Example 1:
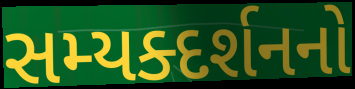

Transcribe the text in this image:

સમ્યક્દર્શનનો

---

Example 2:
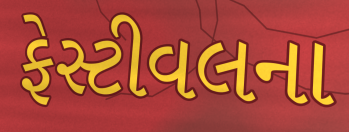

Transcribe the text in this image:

ફેસ્ટીવલના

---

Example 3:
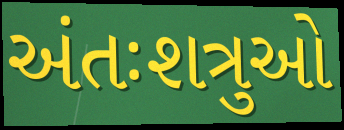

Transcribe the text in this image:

અંતઃશત્રુઓ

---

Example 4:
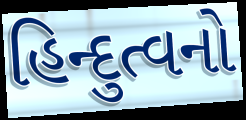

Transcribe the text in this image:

હિન્દુત્વનો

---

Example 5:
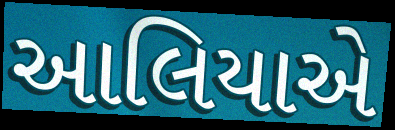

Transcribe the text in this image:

આલિયાએ